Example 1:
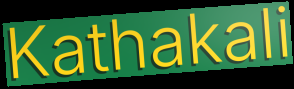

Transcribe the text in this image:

Kathakali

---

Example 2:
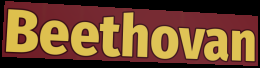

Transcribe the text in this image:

Beethovan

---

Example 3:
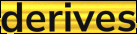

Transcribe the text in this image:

derives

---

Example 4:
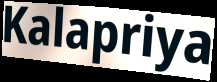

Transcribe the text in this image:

Kalapriya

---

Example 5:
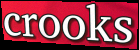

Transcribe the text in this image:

crooks